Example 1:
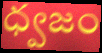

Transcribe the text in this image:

ధ్వజం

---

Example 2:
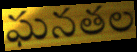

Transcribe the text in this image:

ఘనతల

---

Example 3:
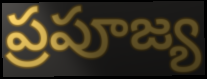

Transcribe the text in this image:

ప్రపూజ్య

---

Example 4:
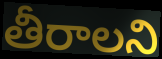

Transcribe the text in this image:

తీరాలని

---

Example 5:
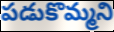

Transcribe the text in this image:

పడుకొమ్మని